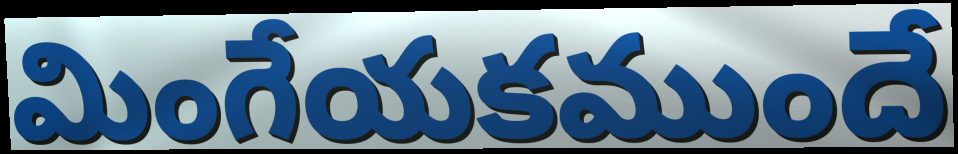
మింగేయకముందే